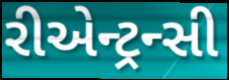
રીએન્ટ્રન્સી